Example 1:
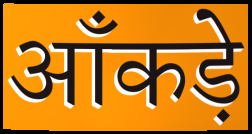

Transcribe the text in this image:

ऑंकड़े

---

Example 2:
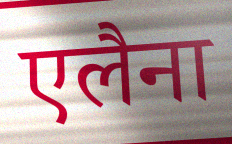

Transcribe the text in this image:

एलैना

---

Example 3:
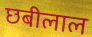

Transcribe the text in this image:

छबीलाल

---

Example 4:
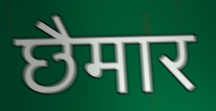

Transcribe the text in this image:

छैमार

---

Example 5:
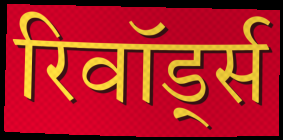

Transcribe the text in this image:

रिवॉर्ड्स